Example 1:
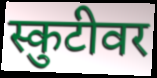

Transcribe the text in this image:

स्कुटीवर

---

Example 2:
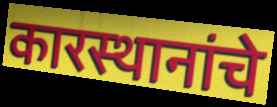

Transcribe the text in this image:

कारस्थानांचे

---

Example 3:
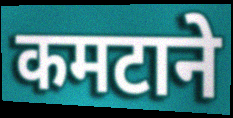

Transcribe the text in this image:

कमटाने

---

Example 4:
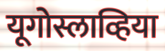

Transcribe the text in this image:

यूगोस्लाव्हिया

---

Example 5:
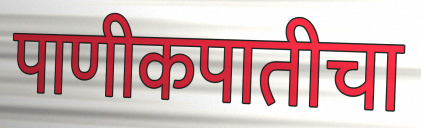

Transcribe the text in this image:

पाणीकपातीचा